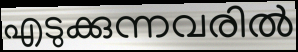
എടുക്കുന്നവരിൽ